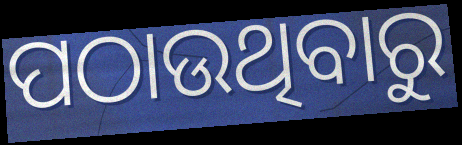
ପଠାଉଥିବାରୁ